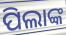
ପିଲାଙ୍କ